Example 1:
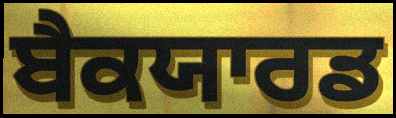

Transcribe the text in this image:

ਬੈਕਯਾਰਡ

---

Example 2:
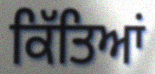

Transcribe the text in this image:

ਕਿੱਤਿਆਂ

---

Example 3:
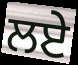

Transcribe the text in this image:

ਲਏ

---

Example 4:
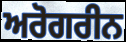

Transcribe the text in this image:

ਅਰੋਗਰੀਨ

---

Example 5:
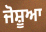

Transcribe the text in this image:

ਜੋਸ਼ੂਆ